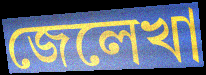
জেলেখা